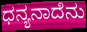
ಧನ್ಯನಾದೆನು